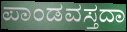
ಪಾಂಡವಸ್ತದಾ